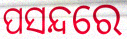
ପସନ୍ଦରେ